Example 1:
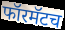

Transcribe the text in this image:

फॉरमॅटच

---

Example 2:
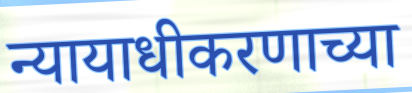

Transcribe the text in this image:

न्यायाधीकरणाच्या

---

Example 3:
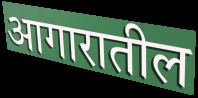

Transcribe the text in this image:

आगारातील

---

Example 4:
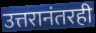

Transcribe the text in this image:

उत्तरानंतरही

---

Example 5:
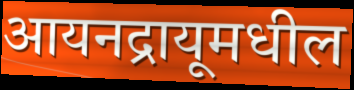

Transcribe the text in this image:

आयनद्रायूमधील